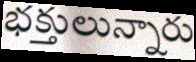
భక్తులున్నారు